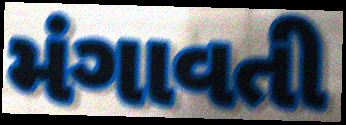
મંગાવતી